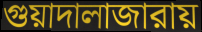
গুয়াদালাজারায়